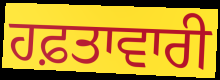
ਹਫ਼ਤਾਵਾਰੀ